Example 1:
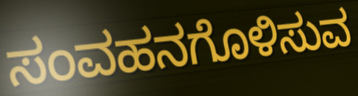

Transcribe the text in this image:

ಸಂವಹನಗೊಳಿಸುವ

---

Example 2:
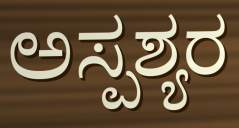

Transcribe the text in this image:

ಅಸ್ಪಶ್ಯರ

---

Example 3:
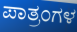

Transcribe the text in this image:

ಪಾತ್ರಂಗಳ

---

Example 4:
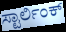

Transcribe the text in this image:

ಸ್ಟಾರ್ಲಿಂಕ್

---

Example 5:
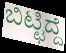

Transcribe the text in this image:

ಬಿಟ್ಟಿದ್ದೆ